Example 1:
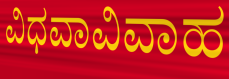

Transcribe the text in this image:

ವಿಧವಾವಿವಾಹ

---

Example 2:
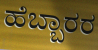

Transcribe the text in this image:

ಹೆಬ್ಬಾರರ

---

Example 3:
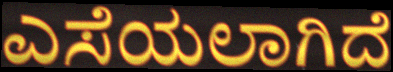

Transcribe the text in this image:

ಎಸೆಯಲಾಗಿದೆ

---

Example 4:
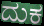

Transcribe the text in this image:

ದುಕ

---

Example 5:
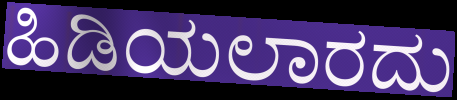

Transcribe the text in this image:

ಹಿಡಿಯಲಾರದು